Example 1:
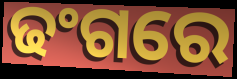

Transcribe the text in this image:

ଢଂଗରେ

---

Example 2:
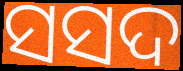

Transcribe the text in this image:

ସସଦ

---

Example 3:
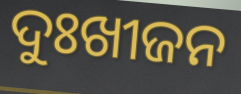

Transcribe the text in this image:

ଦୁଃଖୀଜନ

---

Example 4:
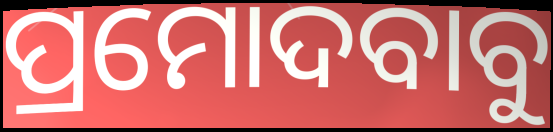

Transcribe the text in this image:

ପ୍ରମୋଦବାବୁ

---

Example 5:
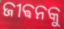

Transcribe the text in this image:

ଜୀଵନକୁ